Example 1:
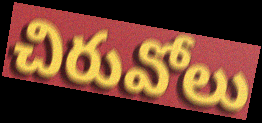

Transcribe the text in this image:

చిరువోలు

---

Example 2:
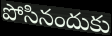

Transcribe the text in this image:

పోసినందుకు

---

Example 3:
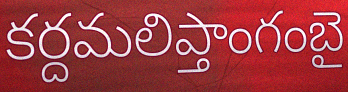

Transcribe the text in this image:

కర్దమలిప్తాంగంబై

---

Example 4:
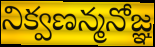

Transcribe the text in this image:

నిక్వణన్మనోజ్ఞ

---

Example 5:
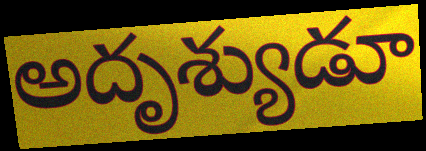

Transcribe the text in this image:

అదృశ్యుడూ